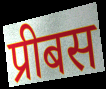
प्रीबस